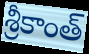
శ్రీకాంత్